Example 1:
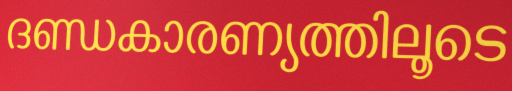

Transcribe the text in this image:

ദണ്ഡകാരണ്യത്തിലൂടെ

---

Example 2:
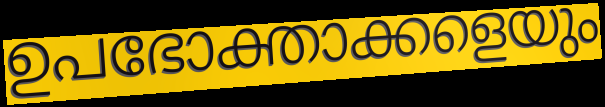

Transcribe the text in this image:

ഉപഭോക്താക്കളെയും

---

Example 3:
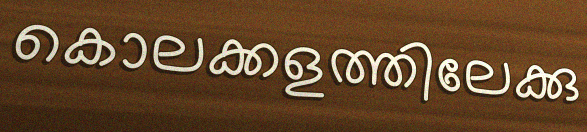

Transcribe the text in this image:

കൊലക്കളത്തിലേക്കു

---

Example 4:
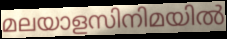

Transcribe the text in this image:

മലയാളസിനിമയിൽ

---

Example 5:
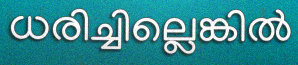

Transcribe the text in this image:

ധരിച്ചില്ലെങ്കിൽ